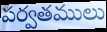
పర్వతములు